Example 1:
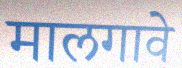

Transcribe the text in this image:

मालगावे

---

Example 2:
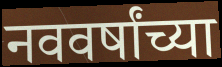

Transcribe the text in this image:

नववर्षांच्या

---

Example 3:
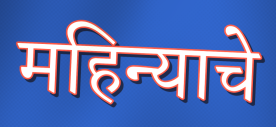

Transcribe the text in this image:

महिन्याचे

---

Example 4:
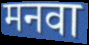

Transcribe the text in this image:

मनवा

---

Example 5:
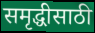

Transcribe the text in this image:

समृद्धीसाठी